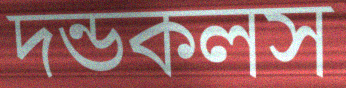
দন্ডকলস